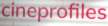
cineprofiles